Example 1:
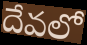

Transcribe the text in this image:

దేవలో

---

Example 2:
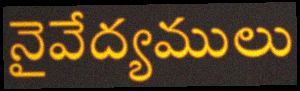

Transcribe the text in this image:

నైవేద్యములు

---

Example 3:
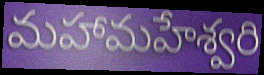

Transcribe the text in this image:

మహామహేశ్వరి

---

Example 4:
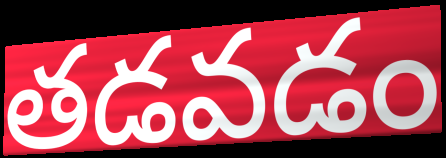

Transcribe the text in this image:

తడవడం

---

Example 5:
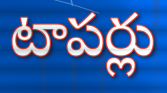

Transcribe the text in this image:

టాపర్లు